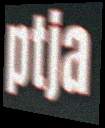
ptja